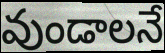
వుండాలనే